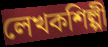
লেখকশিল্পী